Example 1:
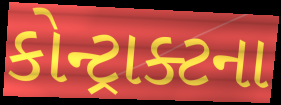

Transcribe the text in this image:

કોન્ટ્રાક્ટના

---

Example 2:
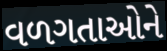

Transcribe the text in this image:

વળગતાઓને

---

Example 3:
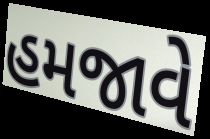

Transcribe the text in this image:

હમજાવે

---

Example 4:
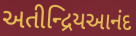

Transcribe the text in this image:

અતીન્દ્રિયઆનંદ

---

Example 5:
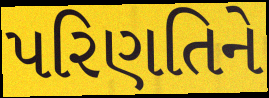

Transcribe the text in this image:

પરિણતિને